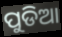
ପୁଡିଆ